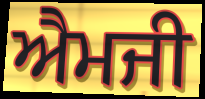
ਐਮਜੀ